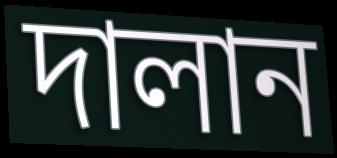
দালান